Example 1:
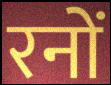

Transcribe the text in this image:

रनों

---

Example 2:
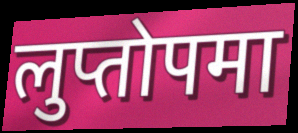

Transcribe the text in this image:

लुप्तोपमा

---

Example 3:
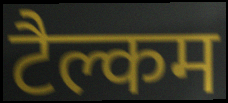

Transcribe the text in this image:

टैल्कम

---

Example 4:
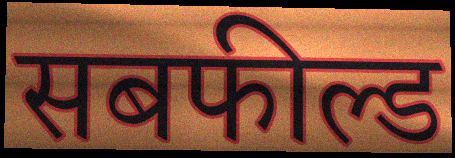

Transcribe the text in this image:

सबफील्ड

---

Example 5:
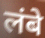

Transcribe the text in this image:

लंबे